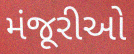
મંજૂરીઓ